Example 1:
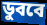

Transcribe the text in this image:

ডুববে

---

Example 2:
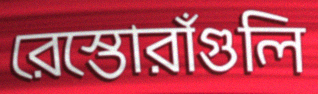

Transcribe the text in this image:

রেস্তোরাঁগুলি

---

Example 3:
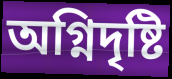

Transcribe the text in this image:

অগ্নিদৃষ্টি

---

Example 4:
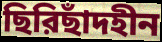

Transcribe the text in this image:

ছিরিছাঁদহীন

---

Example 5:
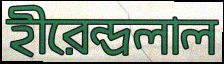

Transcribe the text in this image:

হীরেন্দ্রলাল